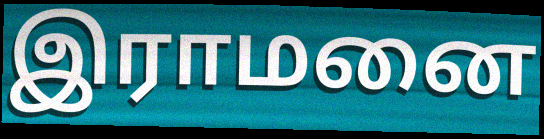
இராமனை